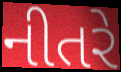
નીતરે